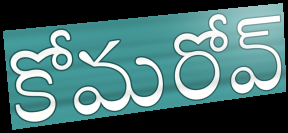
కోమరోవ్